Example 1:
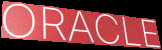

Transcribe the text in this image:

ORACLE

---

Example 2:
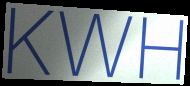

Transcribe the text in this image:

KWH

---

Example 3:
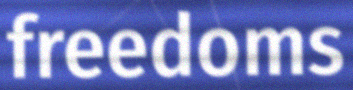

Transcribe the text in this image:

freedoms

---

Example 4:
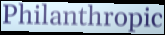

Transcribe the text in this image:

Philanthropic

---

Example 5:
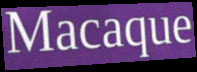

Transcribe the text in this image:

Macaque